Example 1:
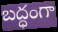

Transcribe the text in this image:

బద్ధంగా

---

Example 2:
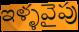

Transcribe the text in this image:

ఇళ్ళవైపు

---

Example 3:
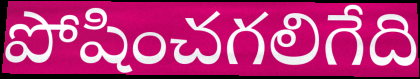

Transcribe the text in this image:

పోషించగలిగేది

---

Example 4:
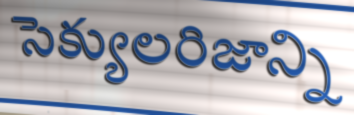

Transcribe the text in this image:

సెక్యులరిజాన్ని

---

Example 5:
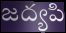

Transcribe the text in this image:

జద్యపి